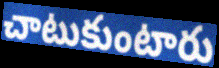
చాటుకుంటారు